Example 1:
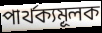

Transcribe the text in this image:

পার্থক্যমূলক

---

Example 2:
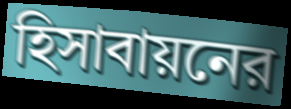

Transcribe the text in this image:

হিসাবায়নের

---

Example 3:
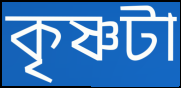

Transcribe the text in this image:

কৃষ্ণটা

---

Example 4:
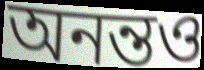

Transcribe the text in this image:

অনন্তও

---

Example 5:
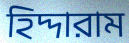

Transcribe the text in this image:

হিদ্দারাম